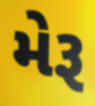
મેરૂ